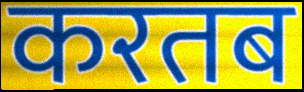
करतब